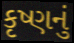
કૃષ્ણનું